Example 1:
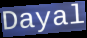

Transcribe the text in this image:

Dayal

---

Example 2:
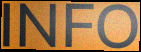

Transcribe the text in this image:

INFO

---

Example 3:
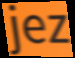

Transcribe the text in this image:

jez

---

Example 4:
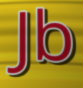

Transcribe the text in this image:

Jb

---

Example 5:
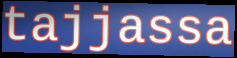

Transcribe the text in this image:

tajjassa